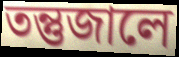
তন্তুজালে